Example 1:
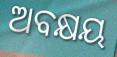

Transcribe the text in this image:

ଅବକ୍ଷୟ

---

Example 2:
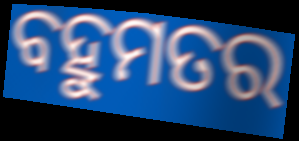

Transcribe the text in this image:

ବହୁମତର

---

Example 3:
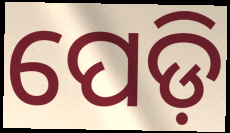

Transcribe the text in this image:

ପେଡ଼ି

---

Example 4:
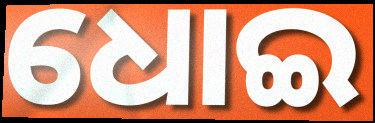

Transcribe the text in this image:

ଧୋଇ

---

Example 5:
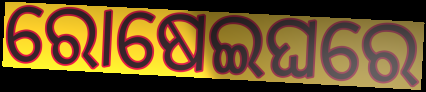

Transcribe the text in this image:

ରୋଷେଇଘରେ